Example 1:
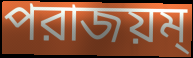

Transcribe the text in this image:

পরাজয়ম্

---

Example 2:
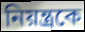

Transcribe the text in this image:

নিয়ন্ত্রকে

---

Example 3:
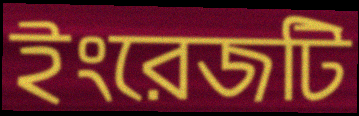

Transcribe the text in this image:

ইংরেজটি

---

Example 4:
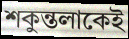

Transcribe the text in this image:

শকুন্তলাকেই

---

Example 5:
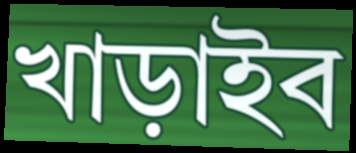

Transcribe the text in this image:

খাড়াইব